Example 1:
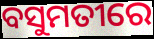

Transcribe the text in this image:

ବସୁମତୀରେ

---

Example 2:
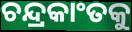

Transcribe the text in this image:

ଚନ୍ଦ୍ରକାଂତକୁ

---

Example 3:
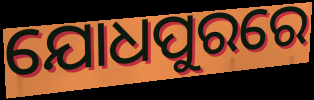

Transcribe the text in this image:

ଯୋଧପୁରରେ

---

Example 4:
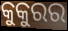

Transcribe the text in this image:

କୁକୁରର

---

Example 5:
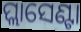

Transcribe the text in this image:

ପ୍ଲାସେଣ୍ଟା